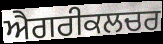
ਐਗਰੀਕਲਚਰ